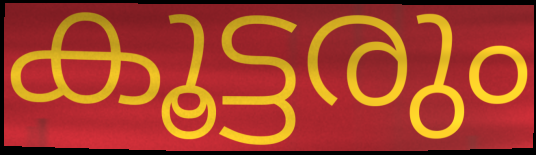
കൂട്ടരും